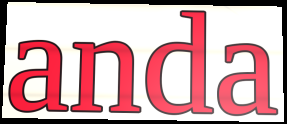
anda